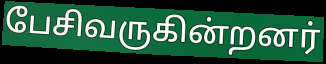
பேசிவருகின்றனர்